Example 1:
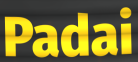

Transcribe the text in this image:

Padai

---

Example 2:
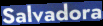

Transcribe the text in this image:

Salvadora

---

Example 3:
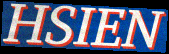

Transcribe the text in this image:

HSIEN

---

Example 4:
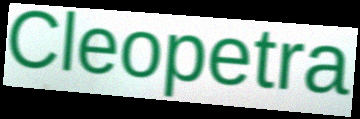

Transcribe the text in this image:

Cleopetra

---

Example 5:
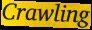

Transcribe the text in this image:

Crawling